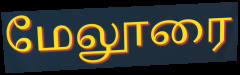
மேலூரை